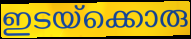
ഇടയ്‌ക്കൊരു